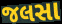
જલસા